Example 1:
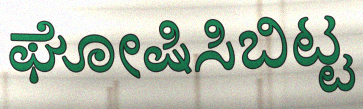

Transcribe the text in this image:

ಘೋಷಿಸಿಬಿಟ್ಟ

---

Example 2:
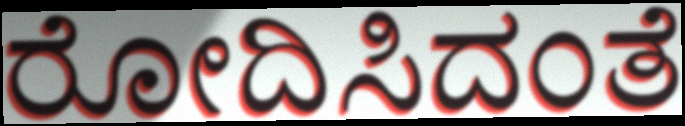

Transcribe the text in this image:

ರೋದಿಸಿದಂತೆ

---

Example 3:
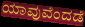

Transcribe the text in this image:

ಯಾವುವೆಂದಡೆ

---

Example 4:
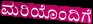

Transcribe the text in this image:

ಮರಿಯೊಂದಿಗೆ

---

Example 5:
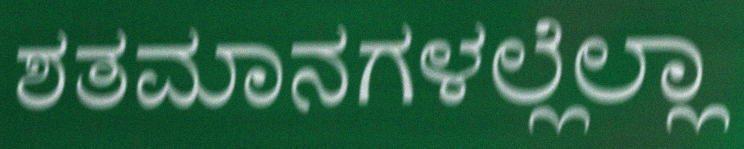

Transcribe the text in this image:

ಶತಮಾನಗಳಲ್ಲೆಲ್ಲಾ